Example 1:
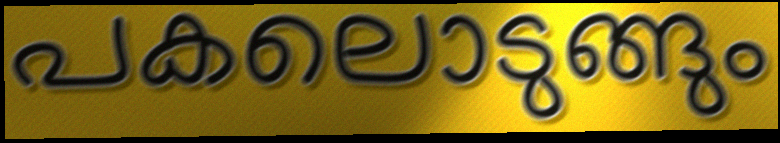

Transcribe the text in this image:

പകലൊടുങ്ങും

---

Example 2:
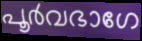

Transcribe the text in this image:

പൂർവഭാഗേ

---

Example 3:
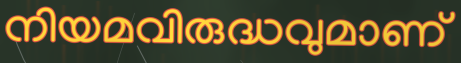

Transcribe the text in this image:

നിയമവിരുദ്ധവുമാണ്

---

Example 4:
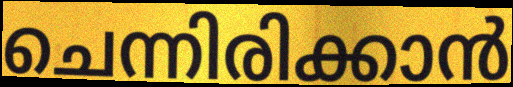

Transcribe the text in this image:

ചെന്നിരിക്കാൻ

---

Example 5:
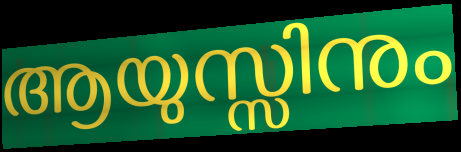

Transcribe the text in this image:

ആയുസ്സിനും